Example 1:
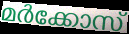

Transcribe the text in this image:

മർക്കോസ്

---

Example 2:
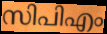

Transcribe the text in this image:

സിപിഎം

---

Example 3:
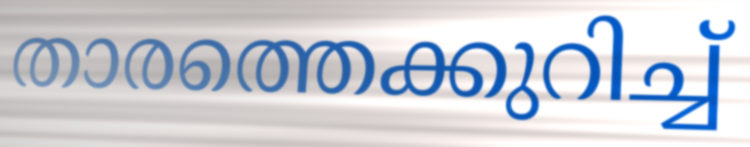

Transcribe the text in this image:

താരത്തെക്കുറിച്ച്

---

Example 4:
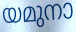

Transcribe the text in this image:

യമുനാ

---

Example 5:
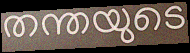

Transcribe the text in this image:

തന്തയുടെ